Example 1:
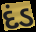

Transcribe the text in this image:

દંડ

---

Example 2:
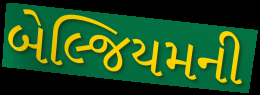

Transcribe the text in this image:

બેલ્જિયમની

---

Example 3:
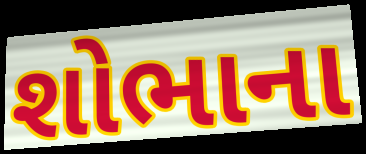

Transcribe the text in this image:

શોભાના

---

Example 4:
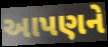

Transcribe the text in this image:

આપણને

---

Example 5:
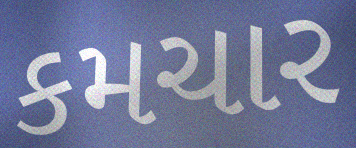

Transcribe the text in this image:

કમચાર